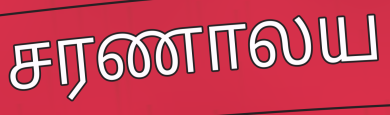
சரணாலய